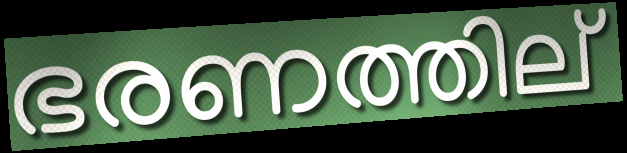
ഭരണത്തില്